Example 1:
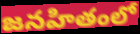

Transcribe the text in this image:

జనహితంలో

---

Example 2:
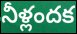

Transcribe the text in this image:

నీళ్లందక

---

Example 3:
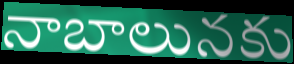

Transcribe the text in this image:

నాబాలునకు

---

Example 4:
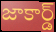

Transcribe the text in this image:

జాకార్డ్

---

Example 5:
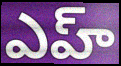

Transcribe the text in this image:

ఎహ్